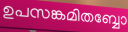
ഉപസങ്കമിതബ്ബോ